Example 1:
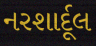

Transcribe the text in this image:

નરશાર્દૂલ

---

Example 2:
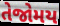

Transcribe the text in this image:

તેજોમય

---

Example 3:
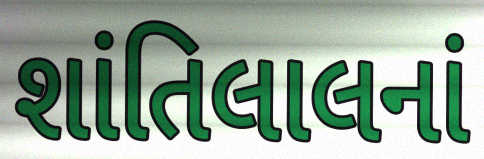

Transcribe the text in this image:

શાંતિલાલનાં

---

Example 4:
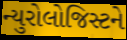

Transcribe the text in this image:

ન્યુરોલોજિસ્ટને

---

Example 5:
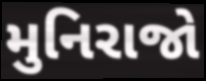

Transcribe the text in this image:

મુનિરાજો